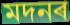
মদনৰ